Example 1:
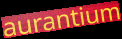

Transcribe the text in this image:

aurantium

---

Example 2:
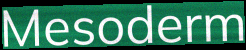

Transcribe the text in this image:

Mesoderm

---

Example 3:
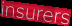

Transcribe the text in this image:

insurers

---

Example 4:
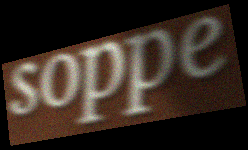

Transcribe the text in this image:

soppe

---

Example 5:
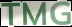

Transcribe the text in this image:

TMG